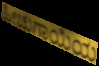
ಹೀಚುಗಾಯಿಯ